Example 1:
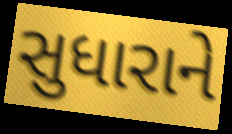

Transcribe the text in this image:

સુધારાને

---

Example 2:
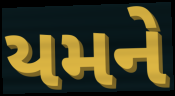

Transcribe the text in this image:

યમને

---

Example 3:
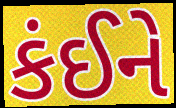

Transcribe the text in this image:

કંઈને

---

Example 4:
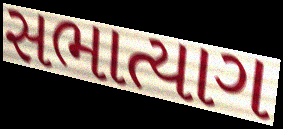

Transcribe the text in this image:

સભાત્યાગ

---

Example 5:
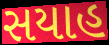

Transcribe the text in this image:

સયાહ